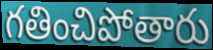
గతించిపోతారు